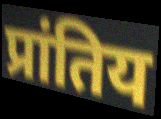
प्रांतिय